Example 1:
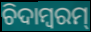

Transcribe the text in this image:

ଚିଦାମ୍ବରମ୍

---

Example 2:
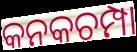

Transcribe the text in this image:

କନକଚମ୍ପା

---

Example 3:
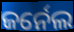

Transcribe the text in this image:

ଜର୍ନେଲ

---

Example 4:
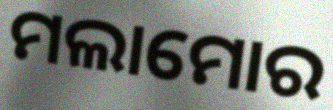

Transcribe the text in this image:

ମଲାମୋର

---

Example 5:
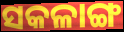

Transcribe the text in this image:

ସକଳାଙ୍ଗ